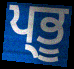
ਪ੍ਭੂ